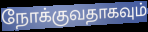
நோக்குவதாகவும்